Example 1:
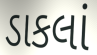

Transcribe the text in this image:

ડાકલાં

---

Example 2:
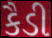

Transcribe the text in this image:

કૈડી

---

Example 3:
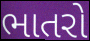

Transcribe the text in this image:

ભાતરો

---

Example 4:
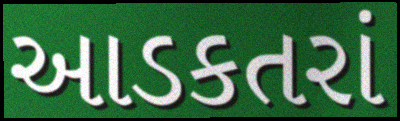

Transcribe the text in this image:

આડકતરાં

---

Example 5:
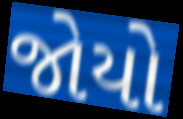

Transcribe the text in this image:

જોયો